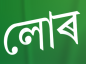
লোৰ